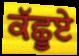
ਕੱਛੂਏ